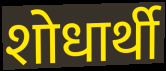
शोधार्थी